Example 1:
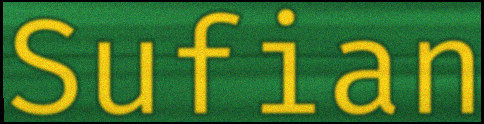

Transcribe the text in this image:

Sufian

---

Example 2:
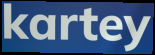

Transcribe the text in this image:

kartey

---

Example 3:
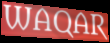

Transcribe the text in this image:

WAQAR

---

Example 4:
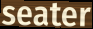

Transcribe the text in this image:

seater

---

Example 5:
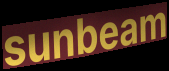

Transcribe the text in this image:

sunbeam